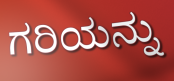
ಗರಿಯನ್ನು